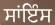
ਸਾਂਇੰਸ